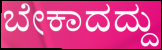
ಬೇಕಾದದ್ದು